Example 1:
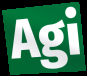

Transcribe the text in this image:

Agi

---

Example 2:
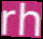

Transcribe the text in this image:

rh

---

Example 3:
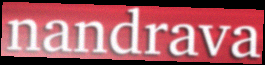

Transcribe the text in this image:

nandrava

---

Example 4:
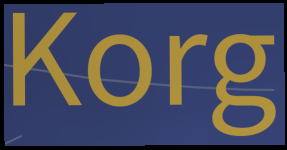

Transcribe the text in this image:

Korg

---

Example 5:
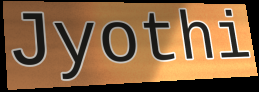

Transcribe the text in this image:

Jyothi